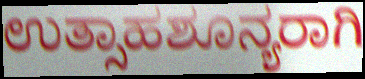
ಉತ್ಸಾಹಶೂನ್ಯರಾಗಿ